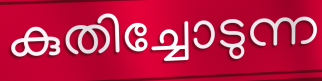
കുതിച്ചോടുന്ന